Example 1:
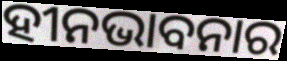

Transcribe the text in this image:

ହୀନଭାବନାର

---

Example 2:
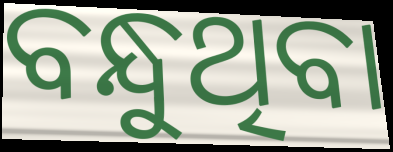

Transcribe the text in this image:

ବନ୍ଧୁଥିବା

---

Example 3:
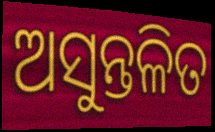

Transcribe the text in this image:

ଅସୁନ୍ତଳିତ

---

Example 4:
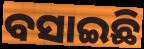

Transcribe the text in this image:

ବସାଇଛି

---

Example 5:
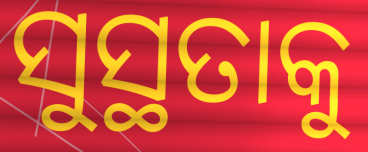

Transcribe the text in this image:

ସୁସ୍ଥତାକୁ